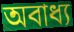
অবাধ্য